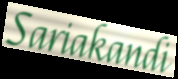
Sariakandi